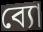
ব্যো